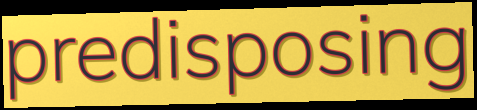
predisposing